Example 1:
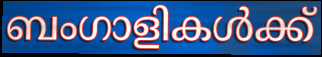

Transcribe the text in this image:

ബംഗാളികൾക്ക്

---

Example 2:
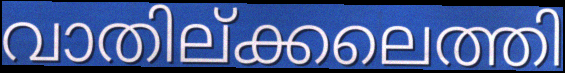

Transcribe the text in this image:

വാതില്ക്കലെത്തി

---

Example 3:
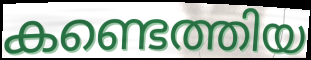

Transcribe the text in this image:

കണ്ടെത്തിയ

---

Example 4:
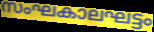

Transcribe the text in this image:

സംഘകാലഘട്ടം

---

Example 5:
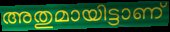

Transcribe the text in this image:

അതുമായിട്ടാണ്